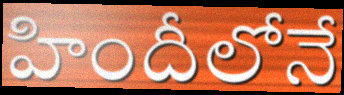
హిందీలోనే